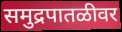
समुद्रपातळीवर